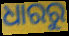
ଧାରରୁ